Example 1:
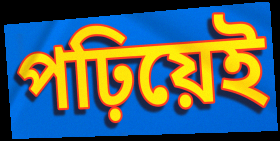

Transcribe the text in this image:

পঢ়িয়েই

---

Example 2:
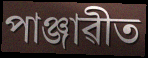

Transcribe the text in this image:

পাঞ্জাৱীত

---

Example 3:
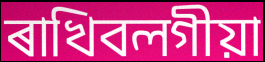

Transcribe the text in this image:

ৰাখিবলগীয়া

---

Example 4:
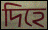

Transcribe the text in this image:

দিহে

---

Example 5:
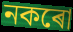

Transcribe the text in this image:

নকৰো